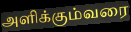
அளிக்கும்வரை